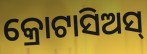
କ୍ରୋଟାସିଅସ୍